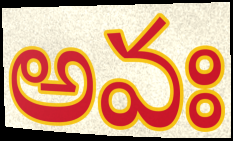
అవః